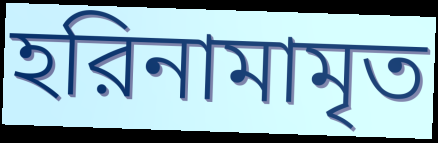
হরিনামামৃত